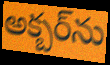
అక్బర్‌ను